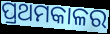
ପ୍ରଥମକାଳର